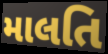
માલતિ